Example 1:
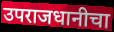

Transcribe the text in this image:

उपराजधानीचा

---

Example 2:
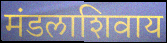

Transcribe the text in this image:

मंडलाशिवाय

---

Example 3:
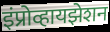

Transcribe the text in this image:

इंप्रोव्हायझेशन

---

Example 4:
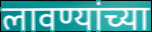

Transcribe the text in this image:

लावण्यांच्या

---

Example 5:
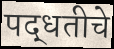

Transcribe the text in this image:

पद्धतीचे